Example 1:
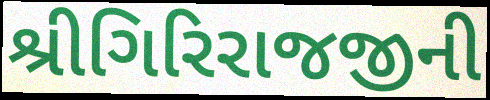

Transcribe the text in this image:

શ્રીગિરિરાજજીની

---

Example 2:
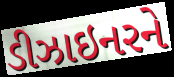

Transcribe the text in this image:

ડીઝાઇનરને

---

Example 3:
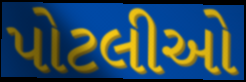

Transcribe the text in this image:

પોટલીઓ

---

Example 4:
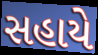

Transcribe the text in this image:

સહાયે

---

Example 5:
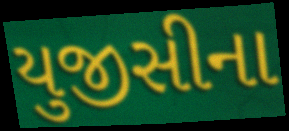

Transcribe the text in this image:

યુજીસીના